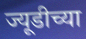
ज्यूडीच्या